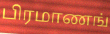
பிரமாணங்